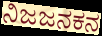
ನಿಜಜನಕನ